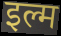
इल्म